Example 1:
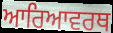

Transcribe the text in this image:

ਆਰਿਆਵਰਥ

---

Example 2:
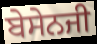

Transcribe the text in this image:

ਬੇਸੇਨਜੀ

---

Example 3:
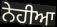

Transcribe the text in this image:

ਨੇਹੀਆ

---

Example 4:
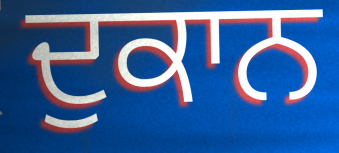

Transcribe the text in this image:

ਦੁਕਾਨ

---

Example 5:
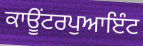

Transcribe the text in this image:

ਕਾਊਂਟਰਪੁਆਇੰਟ